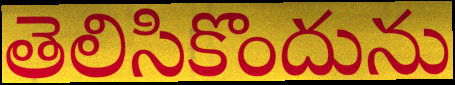
తెలిసికొందును